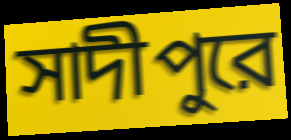
সাদীপুরে